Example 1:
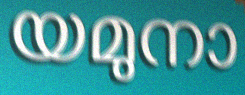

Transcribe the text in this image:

യമുനാ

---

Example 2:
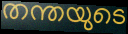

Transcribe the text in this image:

തന്തയുടെ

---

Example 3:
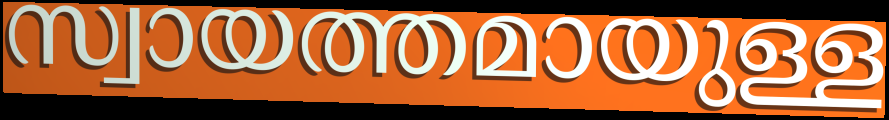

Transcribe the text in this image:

സ്വായത്തമായുള്ള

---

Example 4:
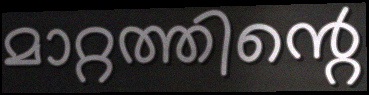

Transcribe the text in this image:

മാറ്റത്തിന്റെ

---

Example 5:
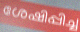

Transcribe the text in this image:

ശേഷിപ്പിച്ച